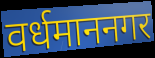
वर्धमाननगर